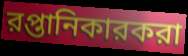
রপ্তানিকারকরা